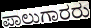
ಪಾಲುಗಾರರು